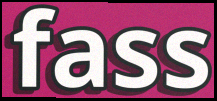
fass